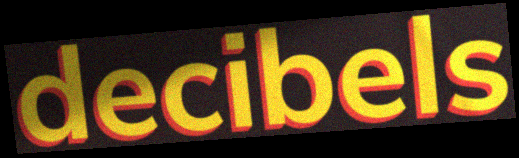
decibels